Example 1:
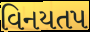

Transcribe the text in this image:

વિનયતપ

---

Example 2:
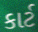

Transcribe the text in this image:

કાર્ટ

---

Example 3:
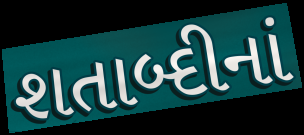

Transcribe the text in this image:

શતાબ્દીનાં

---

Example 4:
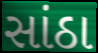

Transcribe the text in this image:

સાંઠા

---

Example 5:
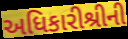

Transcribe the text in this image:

અધિકારીશ્રીની